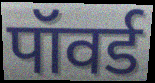
पॉवर्ड